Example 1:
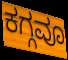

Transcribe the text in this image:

ಕಗ್ಗವೂ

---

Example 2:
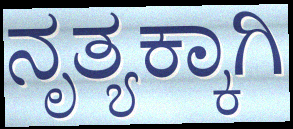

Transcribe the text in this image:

ನೃತ್ಯಕ್ಕಾಗಿ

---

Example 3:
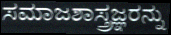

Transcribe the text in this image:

ಸಮಾಜಶಾಸ್ತ್ರಜ್ಞರನ್ನು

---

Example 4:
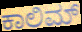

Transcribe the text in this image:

ಕಾಲಿಮ್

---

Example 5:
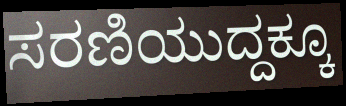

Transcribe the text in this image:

ಸರಣಿಯುದ್ದಕ್ಕೂ